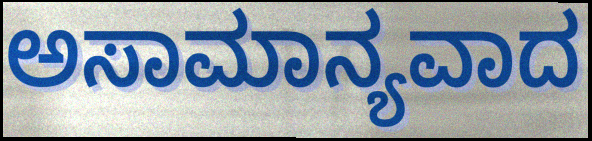
ಅಸಾಮಾನ್ಯವಾದ